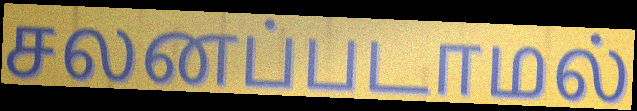
சலனப்படாமல்